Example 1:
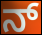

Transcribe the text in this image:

ನ್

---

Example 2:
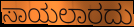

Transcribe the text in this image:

ಸಾಯಲಾರದು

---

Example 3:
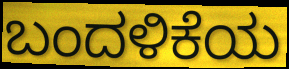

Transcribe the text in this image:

ಬಂದಳಿಕೆಯ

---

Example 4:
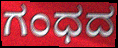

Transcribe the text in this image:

ಗಂಧದ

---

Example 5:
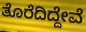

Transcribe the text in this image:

ತೊರೆದಿದ್ದೇವೆ